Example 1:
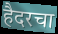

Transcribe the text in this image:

हैदरचा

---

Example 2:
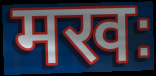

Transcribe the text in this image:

मखः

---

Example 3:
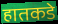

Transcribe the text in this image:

हातकडे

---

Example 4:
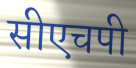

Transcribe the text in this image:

सीएचपी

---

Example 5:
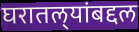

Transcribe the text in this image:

घरातल्यांबद्दल